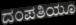
ದಂಪತಿಯೂ